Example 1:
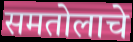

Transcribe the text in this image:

समतोलाचे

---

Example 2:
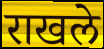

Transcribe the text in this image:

राखले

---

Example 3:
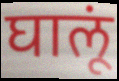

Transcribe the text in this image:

घालूं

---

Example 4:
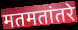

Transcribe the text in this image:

मतमतांतरे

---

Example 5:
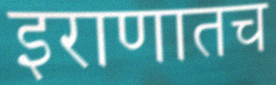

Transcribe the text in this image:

इराणातच